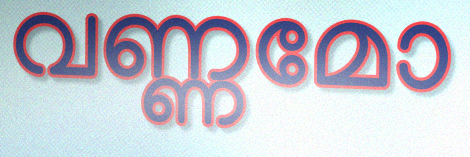
വണ്ണമോ